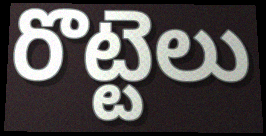
రొట్టెలు